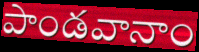
పాండవానాం